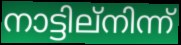
നാട്ടില്നിന്ന്